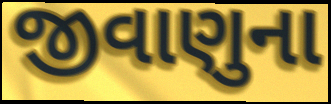
જીવાણુના